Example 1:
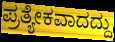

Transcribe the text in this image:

ಪ್ರತ್ಯೇಕವಾದದ್ದು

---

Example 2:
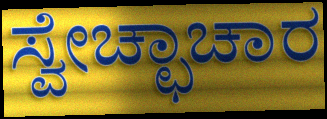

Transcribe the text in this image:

ಸ್ವೇಚ್ಛಾಚಾರ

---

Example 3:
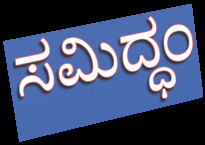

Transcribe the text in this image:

ಸಮಿದ್ಧಂ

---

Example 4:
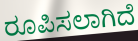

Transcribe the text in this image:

ರೂಪಿಸಲಾಗಿದೆ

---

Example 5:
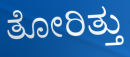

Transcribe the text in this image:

ತೋರಿತ್ತು